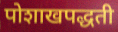
पोशाखपद्धती